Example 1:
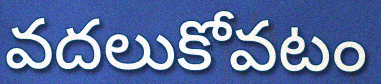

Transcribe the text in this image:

వదలుకోవటం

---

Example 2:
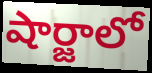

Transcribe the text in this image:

షార్జాలో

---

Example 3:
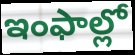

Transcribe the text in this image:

ఇంఫాల్లో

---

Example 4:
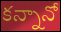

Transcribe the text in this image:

కన్నానో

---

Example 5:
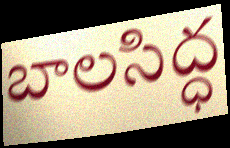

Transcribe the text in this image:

బాలసిద్ధ